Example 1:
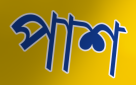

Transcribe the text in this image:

পাশ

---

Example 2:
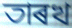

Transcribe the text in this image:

তাৰখ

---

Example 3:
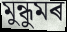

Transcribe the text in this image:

মুন্ধুমৰ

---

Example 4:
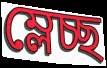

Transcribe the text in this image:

ম্লেচ্ছ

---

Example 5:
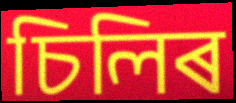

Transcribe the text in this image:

চিলিৰ